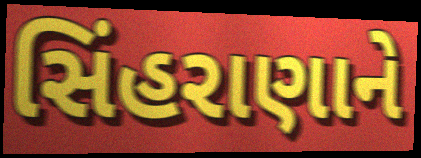
સિંહરાણાને